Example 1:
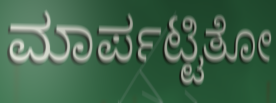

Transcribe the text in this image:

ಮಾರ್ಪಟ್ಟಿತೋ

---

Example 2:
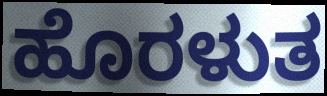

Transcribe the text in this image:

ಹೊರಳುತ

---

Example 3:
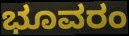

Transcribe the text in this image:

ಭೂವರಂ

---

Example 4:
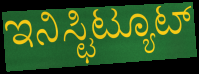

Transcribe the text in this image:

ಇನಿಸ್ಟಿಟ್ಯೂಟ್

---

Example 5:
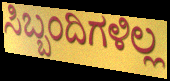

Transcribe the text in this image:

ಸಿಬ್ಬಂದಿಗಳಿಲ್ಲ